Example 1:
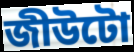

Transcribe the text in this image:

জীউটো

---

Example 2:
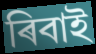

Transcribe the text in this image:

ৰিবাই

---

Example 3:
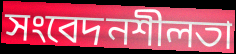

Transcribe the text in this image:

সংবেদনশীলতা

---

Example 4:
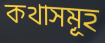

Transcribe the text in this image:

কথাসমূহ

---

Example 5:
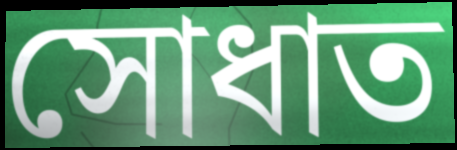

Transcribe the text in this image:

সোধাত